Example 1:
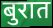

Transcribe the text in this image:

बुरात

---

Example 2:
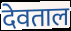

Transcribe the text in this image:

देवताल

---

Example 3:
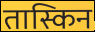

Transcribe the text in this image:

तास्किन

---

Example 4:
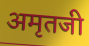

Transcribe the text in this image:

अमृतजी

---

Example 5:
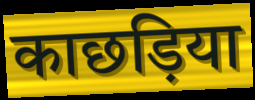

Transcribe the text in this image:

काछड़िया